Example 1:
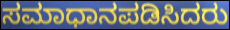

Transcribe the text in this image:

ಸಮಾಧಾನಪಡಿಸಿದರು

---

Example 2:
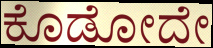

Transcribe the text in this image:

ಕೊಡೋದೇ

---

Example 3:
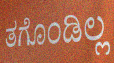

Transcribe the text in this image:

ತಗೊಂಡಿಲ್ಲ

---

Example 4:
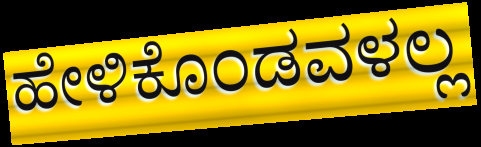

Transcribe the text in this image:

ಹೇಳಿಕೊಂಡವಳಲ್ಲ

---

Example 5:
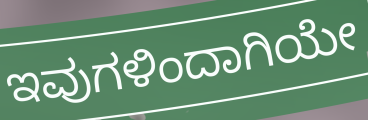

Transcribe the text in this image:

ಇವುಗಳಿಂದಾಗಿಯೇ